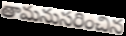
తామనుసరించిన